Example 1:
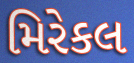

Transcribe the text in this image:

મિરેકલ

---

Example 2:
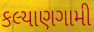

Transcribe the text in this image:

કલ્યાણગામી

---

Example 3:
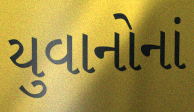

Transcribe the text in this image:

યુવાનોનાં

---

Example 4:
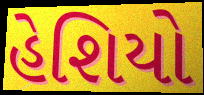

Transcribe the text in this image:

હેશિયો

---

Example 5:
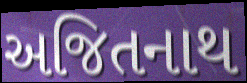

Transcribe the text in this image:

અજિતનાથ